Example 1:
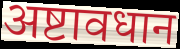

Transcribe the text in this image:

अष्टावधान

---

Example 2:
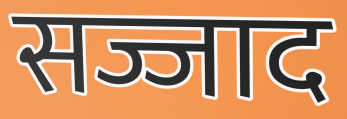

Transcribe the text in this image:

सज्जाद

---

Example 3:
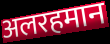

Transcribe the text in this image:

अलरहमान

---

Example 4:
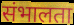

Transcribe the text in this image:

संभालता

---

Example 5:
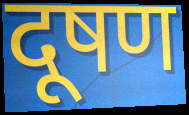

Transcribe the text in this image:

दूषण